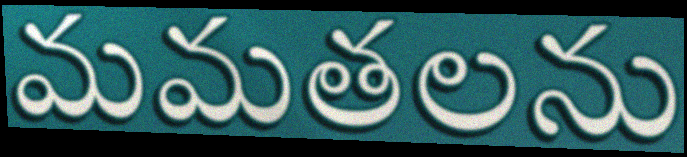
మమతలను